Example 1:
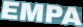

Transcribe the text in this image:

EMPA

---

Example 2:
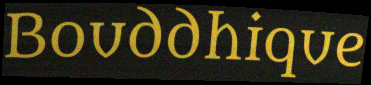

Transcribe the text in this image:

Bouddhique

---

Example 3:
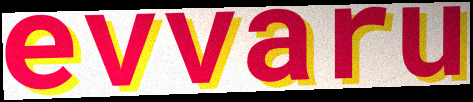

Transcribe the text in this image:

evvaru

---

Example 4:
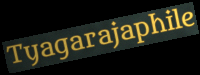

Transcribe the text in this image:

Tyagarajaphile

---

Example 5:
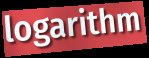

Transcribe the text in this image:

logarithm